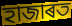
হাজাৰত